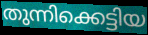
തുന്നിക്കെട്ടിയ